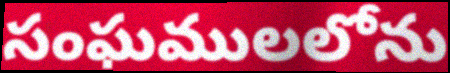
సంఘములలోను